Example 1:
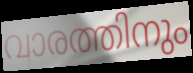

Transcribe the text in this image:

വാരത്തിനും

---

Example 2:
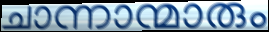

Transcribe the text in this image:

ചാന്നാന്മാരും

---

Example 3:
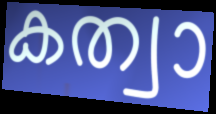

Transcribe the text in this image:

കത്വാ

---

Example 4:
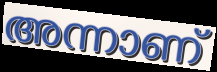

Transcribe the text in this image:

അന്നാണ്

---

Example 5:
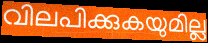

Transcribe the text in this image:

വിലപിക്കുകയുമില്ല